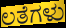
ಲತೆಗಳು